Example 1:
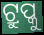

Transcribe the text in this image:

ଟ୍ରୁପ୍କୁ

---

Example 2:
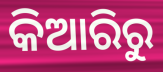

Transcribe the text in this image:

କିଆରିରୁ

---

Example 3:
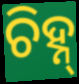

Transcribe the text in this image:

ଚିହ୍ନ୍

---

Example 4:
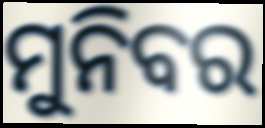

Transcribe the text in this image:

ମୁନିବର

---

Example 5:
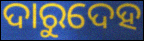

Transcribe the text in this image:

ଦାରୁଦେହ